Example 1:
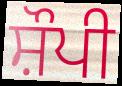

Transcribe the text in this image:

ਸ਼ੌਪੀ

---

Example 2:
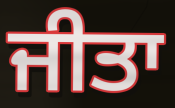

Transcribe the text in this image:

ਜੀਤਾ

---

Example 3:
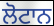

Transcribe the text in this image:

ਲੋਟਾਨ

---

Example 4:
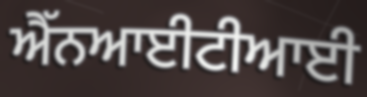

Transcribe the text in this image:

ਐੱਨਆਈਟੀਆਈ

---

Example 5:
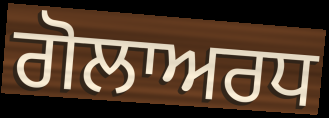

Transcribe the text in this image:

ਗੋਲਾਅਰਧ